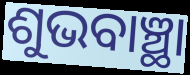
ଶୁଭବାଞ୍ଛା